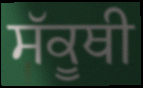
ਸੱਕੂਥੀ